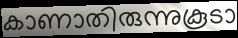
കാണാതിരുന്നുകൂടാ